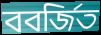
ববর্জিত